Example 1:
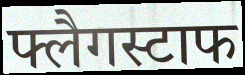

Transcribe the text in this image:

फ्लैगस्टाफ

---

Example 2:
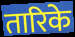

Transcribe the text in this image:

तारिके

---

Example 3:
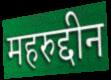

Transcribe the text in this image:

महरुद्दीन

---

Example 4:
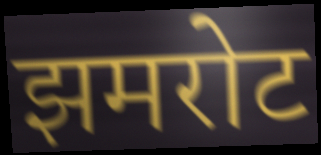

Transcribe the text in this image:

झमरोट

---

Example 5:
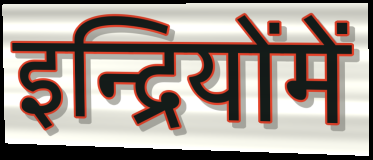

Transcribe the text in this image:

इन्द्रियोंमें